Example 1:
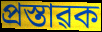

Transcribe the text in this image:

প্ৰস্তাৱক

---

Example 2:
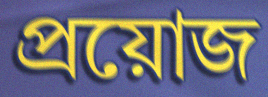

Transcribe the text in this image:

প্ৰয়োজ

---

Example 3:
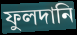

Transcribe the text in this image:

ফুলদানি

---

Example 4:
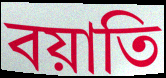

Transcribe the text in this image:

বয়াতি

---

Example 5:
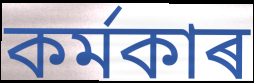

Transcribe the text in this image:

কৰ্মকাৰ